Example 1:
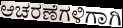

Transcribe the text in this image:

ಆಚರಣೆಗಳಿಗಾಗಿ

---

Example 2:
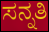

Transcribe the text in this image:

ಸನ್ನತಿ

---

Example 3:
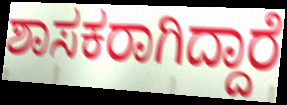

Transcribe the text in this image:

ಶಾಸಕರಾಗಿದ್ದಾರೆ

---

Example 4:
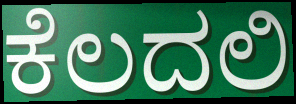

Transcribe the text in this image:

ಕೆಲದಲಿ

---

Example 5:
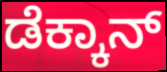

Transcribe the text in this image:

ಡೆಕ್ಕಾನ್